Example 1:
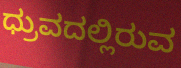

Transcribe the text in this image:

ಧ್ರುವದಲ್ಲಿರುವ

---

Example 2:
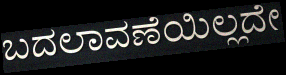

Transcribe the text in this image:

ಬದಲಾವಣೆಯಿಲ್ಲದೇ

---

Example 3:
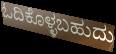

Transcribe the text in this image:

ಓದಿಕೊಳ್ಳಬಹುದು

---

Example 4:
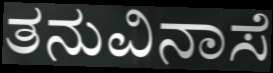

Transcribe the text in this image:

ತನುವಿನಾಸೆ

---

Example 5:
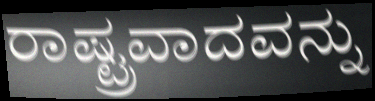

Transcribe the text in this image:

ರಾಷ್ಟ್ರವಾದವನ್ನು